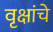
वृक्षांचे